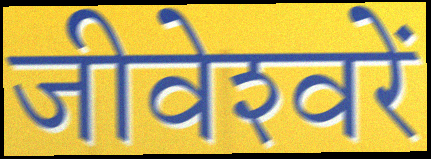
जीवेश्वरें